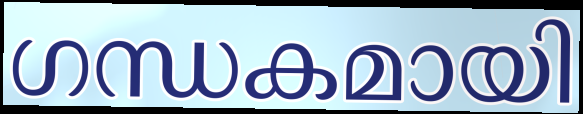
ഗന്ധകമായി